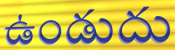
ఉండుదు